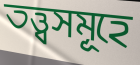
তত্ত্বসমূহে